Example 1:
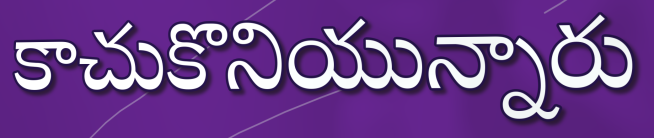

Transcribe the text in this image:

కాచుకొనియున్నారు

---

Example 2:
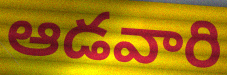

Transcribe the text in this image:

ఆడవారి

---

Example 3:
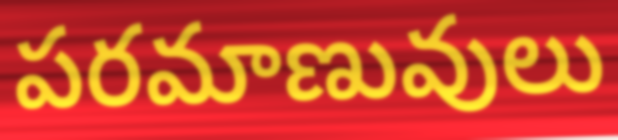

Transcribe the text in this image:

పరమాణువులు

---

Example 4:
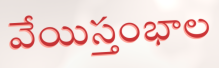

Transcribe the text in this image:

వేయిస్తంభాల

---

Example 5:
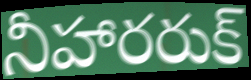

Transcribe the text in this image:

నీహారరుక్